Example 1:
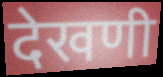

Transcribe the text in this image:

देखणी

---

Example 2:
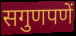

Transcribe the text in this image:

सगुणपणें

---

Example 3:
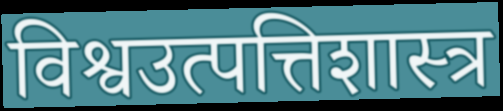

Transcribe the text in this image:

विश्वउत्पत्तिशास्त्र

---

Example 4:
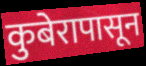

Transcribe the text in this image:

कुबेरापासून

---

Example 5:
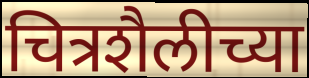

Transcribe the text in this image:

चित्रशैलीच्या